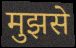
मुझसे